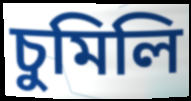
চুমিলি